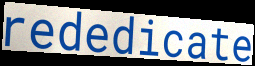
rededicate